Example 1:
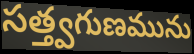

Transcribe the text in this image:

సత్త్వగుణమును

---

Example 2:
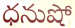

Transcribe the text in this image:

ధనుషో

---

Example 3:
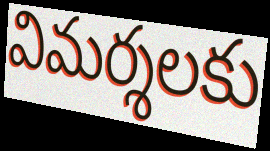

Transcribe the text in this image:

విమర్శలకు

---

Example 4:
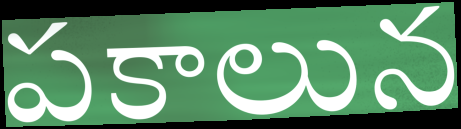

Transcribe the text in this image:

పకాలున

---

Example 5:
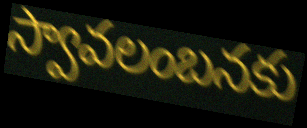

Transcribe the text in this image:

స్వావలంబనకు